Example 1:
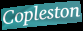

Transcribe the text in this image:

Copleston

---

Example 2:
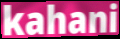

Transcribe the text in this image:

kahani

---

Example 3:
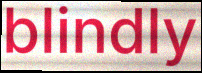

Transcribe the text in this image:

blindly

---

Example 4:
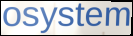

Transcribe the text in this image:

osystem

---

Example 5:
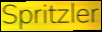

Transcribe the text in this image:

Spritzler